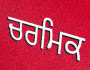
ਚਰਮਿਕ